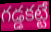
గడ్డకట్టే